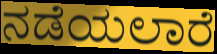
ನಡೆಯಲಾರೆ